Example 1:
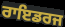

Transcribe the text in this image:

ਰਾਇਡਰਜ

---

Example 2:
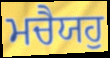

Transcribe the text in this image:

ਮਚੈਯਹੁ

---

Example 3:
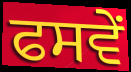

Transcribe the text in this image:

ਫਸਵੇਂ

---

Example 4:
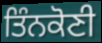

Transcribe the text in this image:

ਤਿੰਨਕੋਣੀ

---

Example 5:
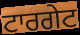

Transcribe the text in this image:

ਟਾਰਗੇਟ